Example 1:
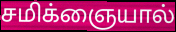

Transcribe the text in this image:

சமிக்ஞையால்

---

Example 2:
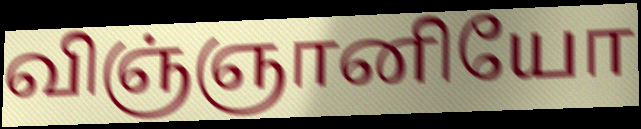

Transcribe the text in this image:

விஞ்ஞானியோ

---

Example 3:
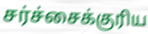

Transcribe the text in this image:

சர்ச்சைக்குரிய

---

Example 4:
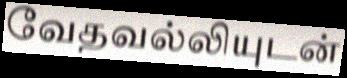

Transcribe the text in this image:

வேதவல்லியுடன்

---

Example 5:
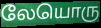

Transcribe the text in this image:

லேயொரு